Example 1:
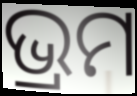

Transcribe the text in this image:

ଭ୍ରମ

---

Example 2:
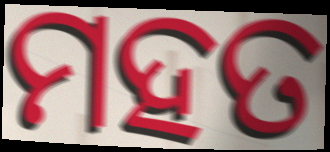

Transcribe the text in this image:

ମହତ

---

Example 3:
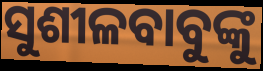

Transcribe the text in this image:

ସୁଶୀଳବାବୁଙ୍କୁ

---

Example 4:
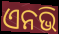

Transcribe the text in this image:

ଏନଭି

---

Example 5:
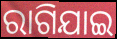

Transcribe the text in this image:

ରାଗିଯାଇ